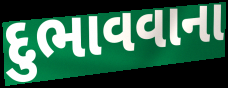
દુભાવવાના